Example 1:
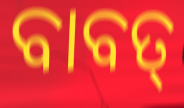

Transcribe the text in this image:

ବାବତ୍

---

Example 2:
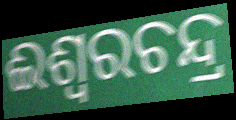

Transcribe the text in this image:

ଈଶ୍ୱରଚନ୍ଦ୍ର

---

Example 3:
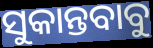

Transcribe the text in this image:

ସୁକାନ୍ତବାବୁ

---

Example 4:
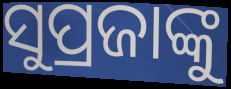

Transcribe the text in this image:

ସୁପ୍ରଜାଙ୍କୁ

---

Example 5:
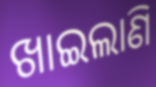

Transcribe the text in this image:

ଖାଇଲାଣି